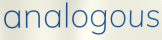
analogous